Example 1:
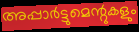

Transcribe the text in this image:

അപ്പാർട്ടുമെന്റുകളും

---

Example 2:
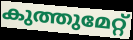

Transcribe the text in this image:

കുത്തുമേറ്റ്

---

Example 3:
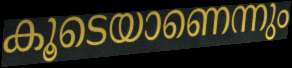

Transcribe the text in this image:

കൂടെയാണെന്നും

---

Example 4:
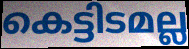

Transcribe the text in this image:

കെട്ടിടമല്ല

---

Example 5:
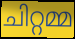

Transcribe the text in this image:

ചിറ്റമ്മ